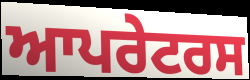
ਆਪਰੇਟਰਸ